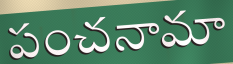
పంచనామా